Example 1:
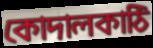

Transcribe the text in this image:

কোদালকাঠি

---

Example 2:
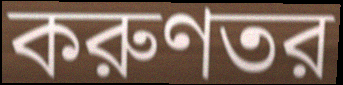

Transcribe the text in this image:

করুণতর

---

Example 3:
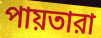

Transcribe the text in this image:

পায়তারা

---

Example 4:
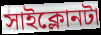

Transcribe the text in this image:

সাইক্লোনটা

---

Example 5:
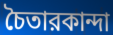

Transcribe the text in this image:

চৈতারকান্দা